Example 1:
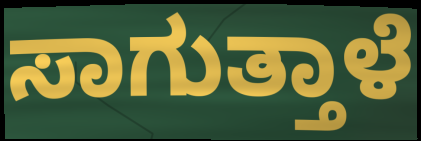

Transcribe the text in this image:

ಸಾಗುತ್ತಾಳೆ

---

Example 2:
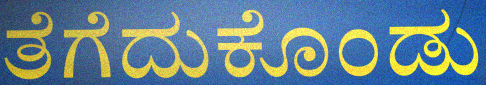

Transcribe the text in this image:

ತೆಗೆದುಕೊಂಡು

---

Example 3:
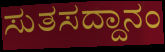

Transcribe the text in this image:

ಸುತಸದ್ದಾನಂ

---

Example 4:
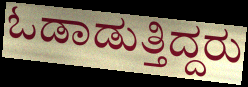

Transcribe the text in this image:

ಓಡಾಡುತ್ತಿದ್ದರು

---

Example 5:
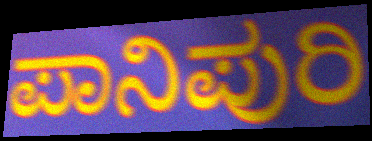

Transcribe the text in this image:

ಪಾನಿಪುರಿ